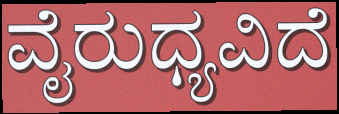
ವೈರುಧ್ಯವಿದೆ